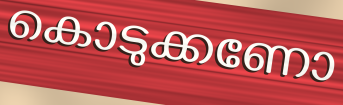
കൊടുക്കണോ